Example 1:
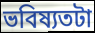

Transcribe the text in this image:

ভবিষ্যতটা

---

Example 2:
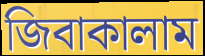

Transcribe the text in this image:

জিবাকালাম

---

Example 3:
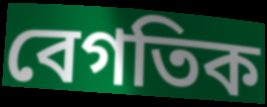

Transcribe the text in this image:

বেগতিক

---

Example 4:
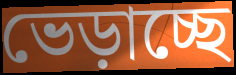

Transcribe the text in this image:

ভেড়াচ্ছে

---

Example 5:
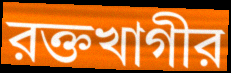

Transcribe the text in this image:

রক্তখাগীর